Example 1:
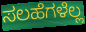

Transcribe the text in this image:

ಸಲಹೆಗಳೆಲ್ಲ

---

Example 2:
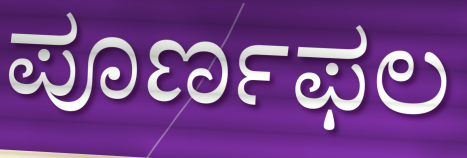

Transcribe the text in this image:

ಪೂರ್ಣಫಲ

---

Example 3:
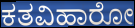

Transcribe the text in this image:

ಕತವಿಹಾರೋ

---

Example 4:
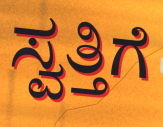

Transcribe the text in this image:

ಸ್ವತ್ತಿಗೆ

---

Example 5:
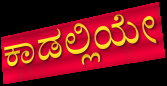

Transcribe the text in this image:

ಕಾಡಲ್ಲಿಯೇ